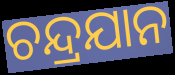
ଚନ୍ଦ୍ରଯାନ